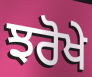
ਝਰੋਖੇ